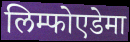
लिम्फोएडेमा